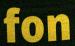
fon